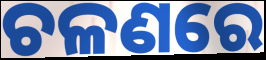
ଚଳଣରେ